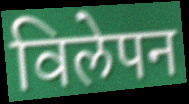
विलेपन